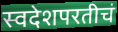
स्वदेशपरतीचं